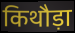
किथौड़ा